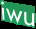
iwu